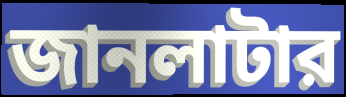
জানলাটার